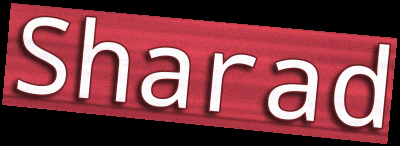
Sharad